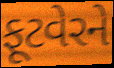
ફૂટવેરને